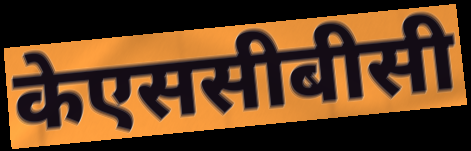
केएससीबीसी